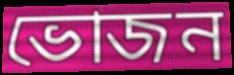
ভোজন